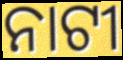
ନାଟୀ